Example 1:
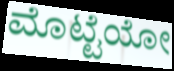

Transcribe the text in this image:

ಮೊಟ್ಟೆಯೋ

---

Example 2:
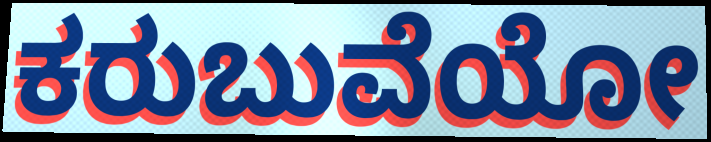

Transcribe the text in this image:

ಕರುಬುವೆಯೋ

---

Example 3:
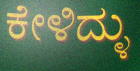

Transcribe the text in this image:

ಕೇಳಿದ್ಳು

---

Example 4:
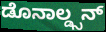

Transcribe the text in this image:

ಡೊನಾಲ್ಡ್ಸನ್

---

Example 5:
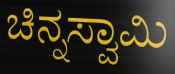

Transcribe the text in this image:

ಚಿನ್ನಸ್ವಾಮಿ